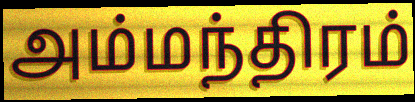
அம்மந்திரம்